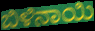
ಬಿಳಿನಾಯಿ